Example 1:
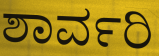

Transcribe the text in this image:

ಶಾರ್ವರಿ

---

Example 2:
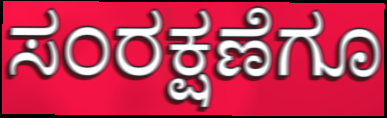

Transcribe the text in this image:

ಸಂರಕ್ಷಣೆಗೂ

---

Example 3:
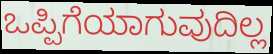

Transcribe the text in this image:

ಒಪ್ಪಿಗೆಯಾಗುವುದಿಲ್ಲ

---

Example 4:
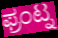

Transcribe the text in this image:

ಫ್ರಂಟ್ನ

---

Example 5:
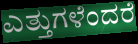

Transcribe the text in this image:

ಎತ್ತುಗಳೆಂದರೆ